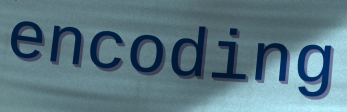
encoding